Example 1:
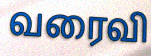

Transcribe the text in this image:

வரைவி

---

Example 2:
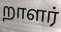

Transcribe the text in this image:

றாளர்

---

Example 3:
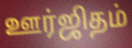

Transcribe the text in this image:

ஊர்ஜிதம்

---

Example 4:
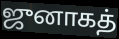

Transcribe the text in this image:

ஜுனாகத்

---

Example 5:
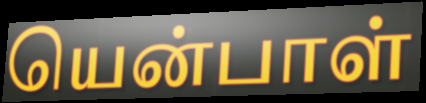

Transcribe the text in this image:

யென்பாள்